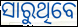
ସାରୁଥିବେ